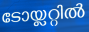
ടോയ്ലറ്റിൽ